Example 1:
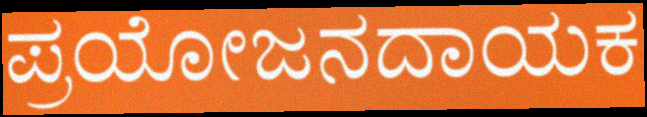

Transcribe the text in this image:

ಪ್ರಯೋಜನದಾಯಕ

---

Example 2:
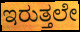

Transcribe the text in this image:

ಇರುತ್ತಲೇ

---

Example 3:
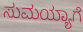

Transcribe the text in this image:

ಸುಮಯ್ಯಾಗೆ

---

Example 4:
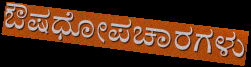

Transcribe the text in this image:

ಔಷಧೋಪಚಾರಗಳು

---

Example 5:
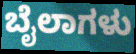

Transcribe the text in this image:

ಬೈಲಾಗಳು